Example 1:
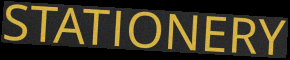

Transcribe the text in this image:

STATIONERY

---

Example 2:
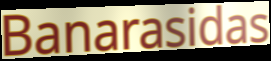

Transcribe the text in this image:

Banarasidas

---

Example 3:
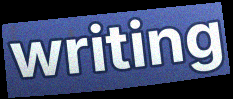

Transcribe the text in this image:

writing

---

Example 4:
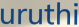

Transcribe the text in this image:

uruthi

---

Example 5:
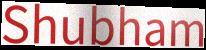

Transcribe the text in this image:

Shubham